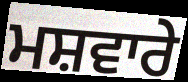
ਮਸ਼ਵਾਰੇ